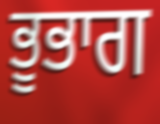
ਭੂਭਾਗ